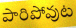
పారిపోవుట